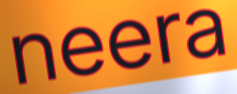
neera